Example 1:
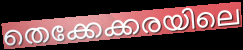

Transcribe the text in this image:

തെക്കേക്കരയിലെ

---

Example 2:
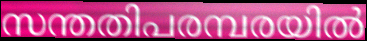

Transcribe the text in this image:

സന്തതിപരമ്പരയിൽ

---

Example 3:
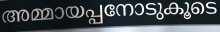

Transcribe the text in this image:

അമ്മായപ്പനോടുകൂടെ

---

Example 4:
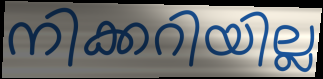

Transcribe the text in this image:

നിക്കറിയില്ല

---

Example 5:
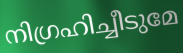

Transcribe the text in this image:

നിഗ്രഹിച്ചീടുമേ